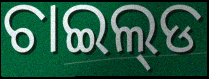
ଚାଇଲ୍‌ଡ